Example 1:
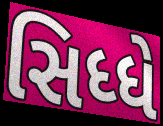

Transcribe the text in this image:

સિધ્ધે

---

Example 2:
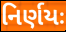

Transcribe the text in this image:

નિર્ણયઃ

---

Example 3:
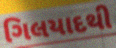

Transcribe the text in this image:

ગિલયાદથી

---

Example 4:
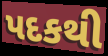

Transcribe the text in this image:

પદકથી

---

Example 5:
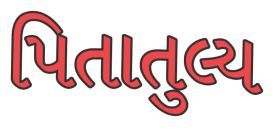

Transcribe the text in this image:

પિતાતુલ્ય